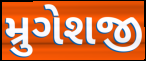
મ્રુગેશજી